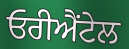
ਓਰੀਐਂਟੇਲ